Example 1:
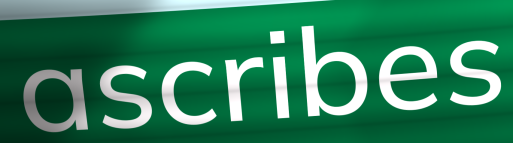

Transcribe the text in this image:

ascribes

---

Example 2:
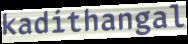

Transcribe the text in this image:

kadithangal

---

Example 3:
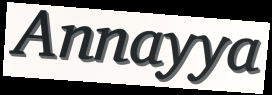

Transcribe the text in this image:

Annayya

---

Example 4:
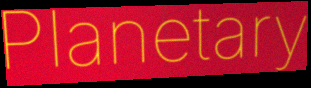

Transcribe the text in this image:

Planetary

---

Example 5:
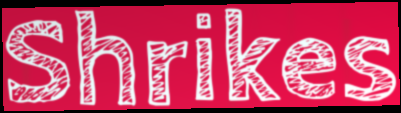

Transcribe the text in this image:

Shrikes